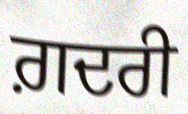
ਗ਼ਦਰੀ